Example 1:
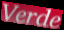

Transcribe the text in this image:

Verde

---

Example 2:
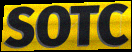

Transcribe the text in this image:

SOTC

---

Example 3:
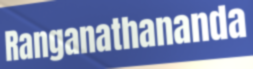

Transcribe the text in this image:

Ranganathananda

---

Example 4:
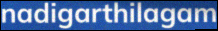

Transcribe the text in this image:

nadigarthilagam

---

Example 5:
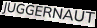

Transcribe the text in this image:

JUGGERNAUT